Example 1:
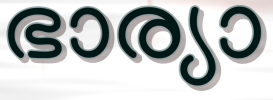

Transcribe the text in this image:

ഭാര്യാ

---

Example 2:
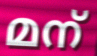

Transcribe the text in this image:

മന്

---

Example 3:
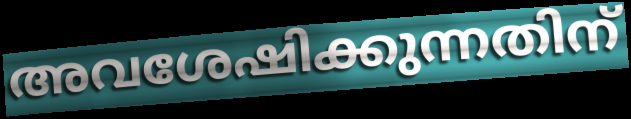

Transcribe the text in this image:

അവശേഷിക്കുന്നതിന്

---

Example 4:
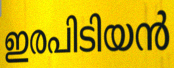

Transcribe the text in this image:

ഇരപിടിയൻ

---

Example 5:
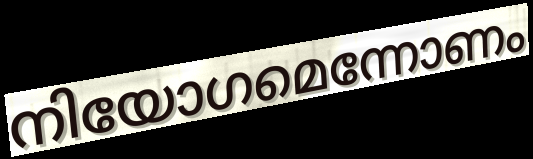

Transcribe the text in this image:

നിയോഗമെന്നോണം